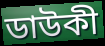
ডাউকী